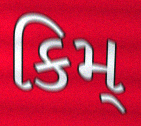
કિમ્